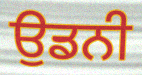
ਉਡਨੀ